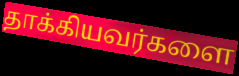
தாக்கியவர்களை